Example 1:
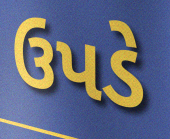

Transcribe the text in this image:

ઉપડે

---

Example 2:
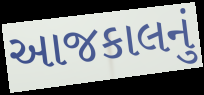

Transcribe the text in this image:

આજકાલનું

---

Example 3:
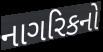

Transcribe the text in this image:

નાગરિકનો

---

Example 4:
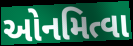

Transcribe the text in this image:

ઓનમિત્વા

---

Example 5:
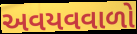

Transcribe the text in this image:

અવયવવાળો